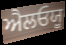
ਐਲਓਯੂ